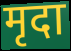
मृदा